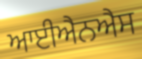
ਆਈਐਨਐਸ